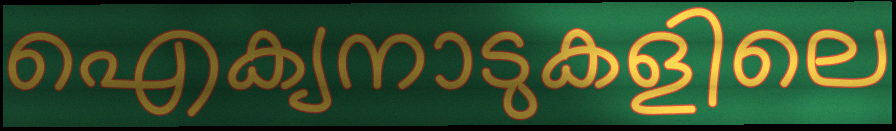
ഐക്യനാടുകളിലെ